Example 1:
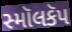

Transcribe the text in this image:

સ્મૉલકૅપ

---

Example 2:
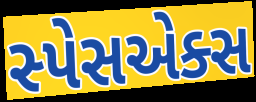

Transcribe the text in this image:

સ્પેસએક્સ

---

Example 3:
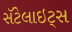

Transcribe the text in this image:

સૅટેલાઇટ્સ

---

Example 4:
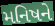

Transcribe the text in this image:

મનિષને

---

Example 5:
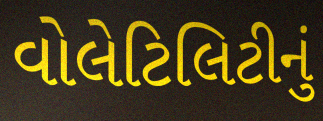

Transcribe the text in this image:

વોલેટિલિટીનું